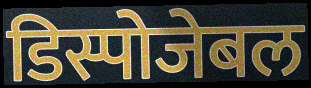
डिस्पोजेबल